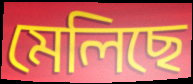
মেলিছে